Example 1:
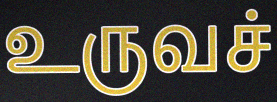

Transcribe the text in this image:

உருவச்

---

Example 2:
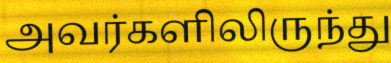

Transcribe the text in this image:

அவர்களிலிருந்து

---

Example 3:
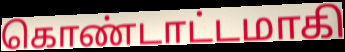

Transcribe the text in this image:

கொண்டாட்டமாகி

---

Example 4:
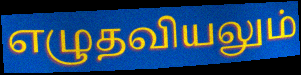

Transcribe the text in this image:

எழுதவியலும்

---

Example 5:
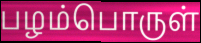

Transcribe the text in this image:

பழம்பொருள்